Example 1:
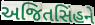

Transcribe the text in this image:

અજિતસિંહને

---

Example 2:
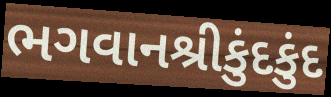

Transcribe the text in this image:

ભગવાનશ્રીકુંદકુંદ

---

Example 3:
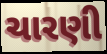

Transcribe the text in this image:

ચારણી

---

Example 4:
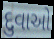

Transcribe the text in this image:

દુવાઓ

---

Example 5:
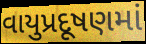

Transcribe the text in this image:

વાયુપ્રદૂષણમાં